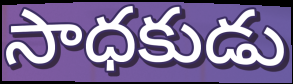
సాధకుడు